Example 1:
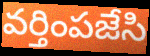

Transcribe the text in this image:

వర్తింపజేసి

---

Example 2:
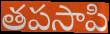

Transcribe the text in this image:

తపసాపి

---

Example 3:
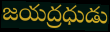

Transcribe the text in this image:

జయద్రధుడు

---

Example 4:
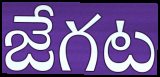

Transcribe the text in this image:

జేగట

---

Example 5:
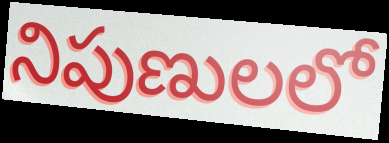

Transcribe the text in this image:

నిపుణులలో